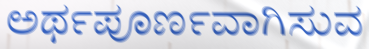
ಅರ್ಥಪೂರ್ಣವಾಗಿಸುವ